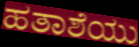
ಹತಾಶೆಯು